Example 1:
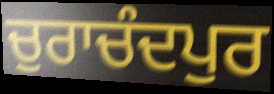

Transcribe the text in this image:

ਚੁਰਾਚੰਦਪੁਰ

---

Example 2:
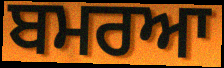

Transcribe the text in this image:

ਬਮਰਆ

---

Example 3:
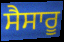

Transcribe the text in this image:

ਸੈਸਾਰੂ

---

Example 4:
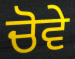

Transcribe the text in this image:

ਚੋਵੇ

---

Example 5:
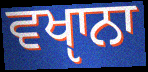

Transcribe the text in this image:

ਵਖੵਾਨਾ